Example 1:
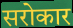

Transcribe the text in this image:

सरोकार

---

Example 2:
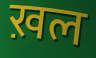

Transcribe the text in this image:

ख़ल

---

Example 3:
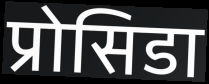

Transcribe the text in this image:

प्रोसिडा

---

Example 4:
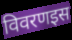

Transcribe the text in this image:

विवरणइस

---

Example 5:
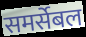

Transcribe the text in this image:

समर्सेबल